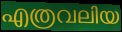
എത്രവലിയ